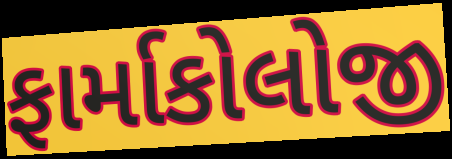
ફાર્માકોલોજી